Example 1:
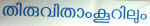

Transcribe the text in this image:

തിരുവിതാംകൂറിലും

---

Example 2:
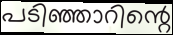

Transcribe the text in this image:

പടിഞ്ഞാറിന്റെ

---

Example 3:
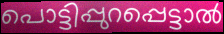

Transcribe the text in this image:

പൊട്ടിപ്പുറപ്പെട്ടാൽ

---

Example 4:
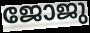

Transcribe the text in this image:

ജോജു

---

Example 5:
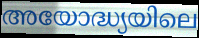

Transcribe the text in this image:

അയോദ്ധ്യയിലെ